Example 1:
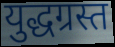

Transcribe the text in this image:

युद्धग्रस्त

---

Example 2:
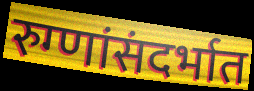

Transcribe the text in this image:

रुग्णांसंदर्भात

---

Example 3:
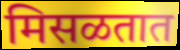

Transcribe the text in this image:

मिसळतात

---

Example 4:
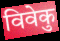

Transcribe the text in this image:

विवेकु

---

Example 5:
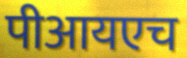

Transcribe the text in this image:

पीआयएच